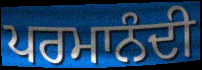
ਪਰਮਾਨੰਦੀ